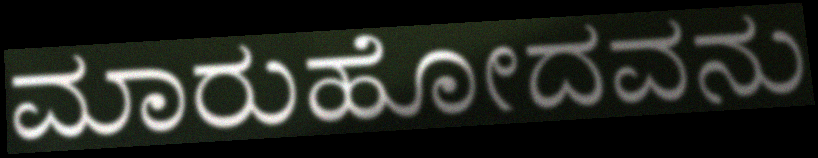
ಮಾರುಹೋದವನು